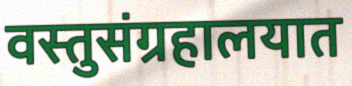
वस्तुसंग्रहालयात